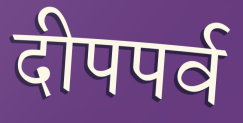
दीपपर्व